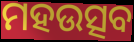
ମହଉତ୍ସବ